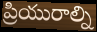
ప్రియురాల్ని